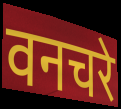
वनचरे